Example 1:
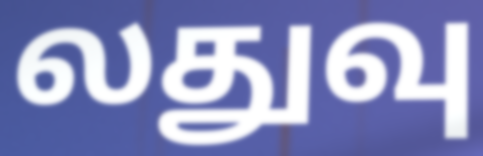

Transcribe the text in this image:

லதுவு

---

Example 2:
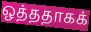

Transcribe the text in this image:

ஒத்ததாகக்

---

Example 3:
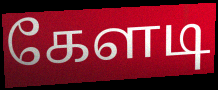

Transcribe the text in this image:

கேளடி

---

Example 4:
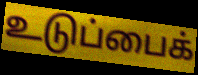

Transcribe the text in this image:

உடுப்பைக்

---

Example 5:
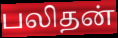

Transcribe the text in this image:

பலிதன்